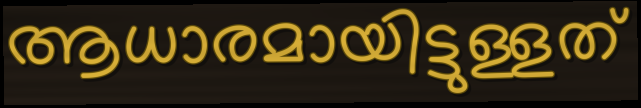
ആധാരമായിട്ടുള്ളത്